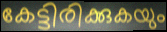
കേട്ടിരിക്കുകയും